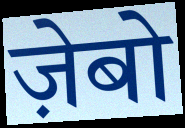
ज़ेबो